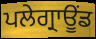
ਪਲੇਗ੍ਰਾਊਂਡ